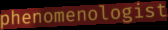
phenomenologist